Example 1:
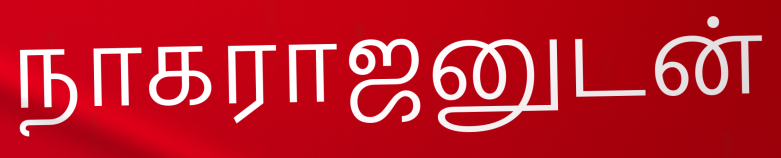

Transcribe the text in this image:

நாகராஜனுடன்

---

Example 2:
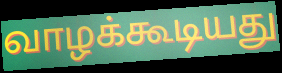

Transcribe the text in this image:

வாழக்கூடியது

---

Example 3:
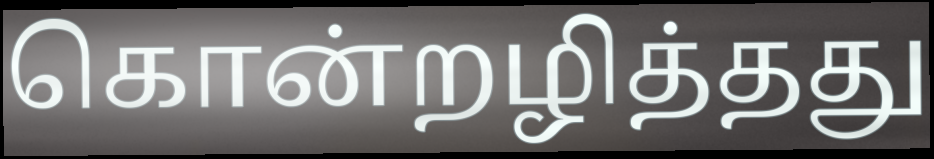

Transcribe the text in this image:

கொன்றழித்தது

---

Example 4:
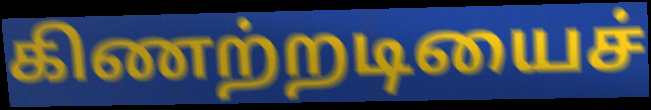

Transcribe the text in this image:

கிணற்றடியைச்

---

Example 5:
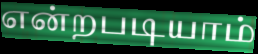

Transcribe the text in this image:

என்றபடியாம்